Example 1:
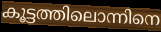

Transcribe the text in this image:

കൂട്ടത്തിലൊന്നിനെ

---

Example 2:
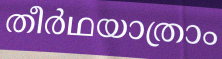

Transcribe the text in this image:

തീർഥയാത്രാം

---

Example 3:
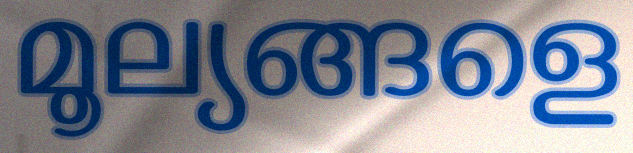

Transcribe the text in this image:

മൂല്യങ്ങളെ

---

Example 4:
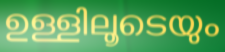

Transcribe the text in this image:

ഉള്ളിലൂടെയും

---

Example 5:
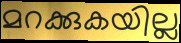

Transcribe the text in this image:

മറക്കുകയില്ല